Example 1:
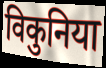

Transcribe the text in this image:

विकुनिया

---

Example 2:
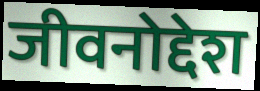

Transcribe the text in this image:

जीवनोद्देश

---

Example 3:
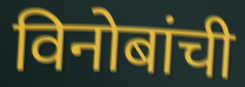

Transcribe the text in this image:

विनोबांची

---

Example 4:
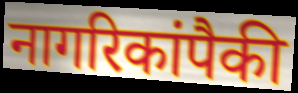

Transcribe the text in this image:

नागरिकांपैकी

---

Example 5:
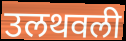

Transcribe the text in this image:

उलथवली